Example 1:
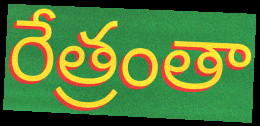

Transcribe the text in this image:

రేత్రంతా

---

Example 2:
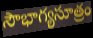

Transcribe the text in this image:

సౌభాగ్యసూత్రం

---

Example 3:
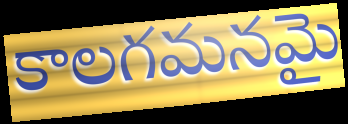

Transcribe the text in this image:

కాలగమనమై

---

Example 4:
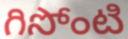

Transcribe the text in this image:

గిసోంటి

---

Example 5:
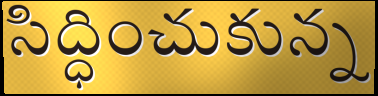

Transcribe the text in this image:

సిద్ధించుకున్న